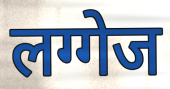
लग्गेज